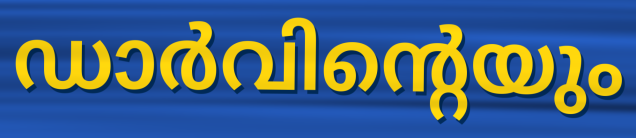
ഡാർവിന്റെയും